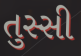
તુસ્સી